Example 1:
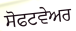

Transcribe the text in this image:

ਸੋਫਟਵੇਅਰ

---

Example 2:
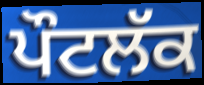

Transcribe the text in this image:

ਪੌਟਲੱਕ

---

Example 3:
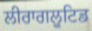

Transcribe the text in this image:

ਲੀਰਾਗਲੂਟਿਡ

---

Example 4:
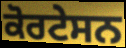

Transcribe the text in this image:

ਕੋਰਟੇਸਨ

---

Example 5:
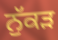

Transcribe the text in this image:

ਨੁੱਕਡ਼